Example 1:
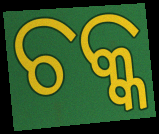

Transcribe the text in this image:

ଚକ୍କ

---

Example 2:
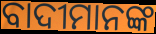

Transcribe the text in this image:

ବାଦୀମାନଙ୍କ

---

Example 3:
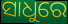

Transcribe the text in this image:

ସାଧୁରେ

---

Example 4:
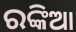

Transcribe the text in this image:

ରଙ୍କିଆ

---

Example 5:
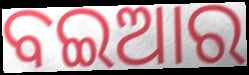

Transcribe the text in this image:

ବଇଆର